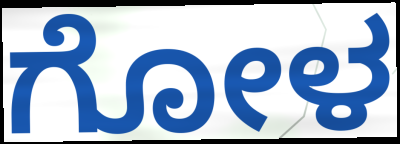
ಗೋಳ